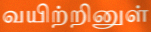
வயிற்றினுள்